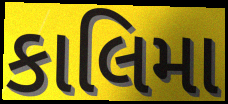
કાલિમા